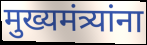
मुख्यमंत्र्यांना